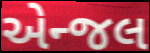
એન્જલ